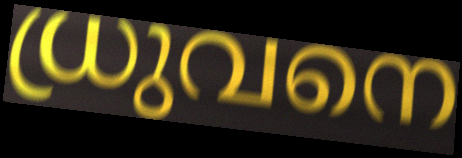
ധ്രുവനെ